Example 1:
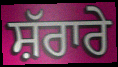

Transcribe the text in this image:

ਸ਼ੱਰਾਰੇ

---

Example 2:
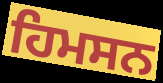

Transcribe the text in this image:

ਹਿਮਸਨ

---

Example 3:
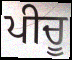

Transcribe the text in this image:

ਪੀਚੂ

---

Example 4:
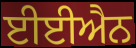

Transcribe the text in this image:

ਈਈਐਨ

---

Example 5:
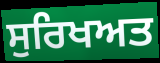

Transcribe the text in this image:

ਸੁਰਿਖਅਤ